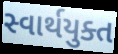
સ્વાર્થયુક્ત